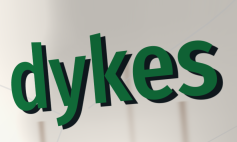
dykes